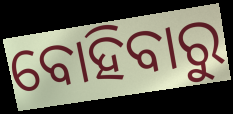
ବୋହିବାରୁ